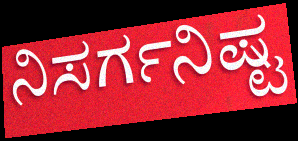
ನಿಸರ್ಗನಿಷ್ಟ